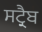
ਸਟ੍ਰੈਬ